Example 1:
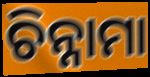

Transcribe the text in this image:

ଚିନ୍ନାମା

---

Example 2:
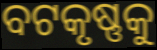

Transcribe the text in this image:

ବଟକୃଷ୍ଣକୁ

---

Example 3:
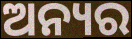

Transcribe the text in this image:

ଅନ୍ୟର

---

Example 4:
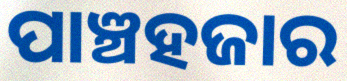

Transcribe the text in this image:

ପାଞ୍ଚହଜାର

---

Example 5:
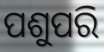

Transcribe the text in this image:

ପଶୁପରି